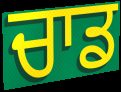
ਚਾਡ